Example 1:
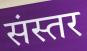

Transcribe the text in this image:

संस्तर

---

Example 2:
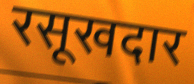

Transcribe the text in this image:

रसूखदार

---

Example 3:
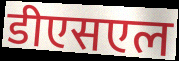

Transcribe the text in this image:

डीएसएल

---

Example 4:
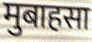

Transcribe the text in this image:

मुबाहसा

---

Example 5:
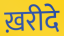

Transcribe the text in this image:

ख़रीदे